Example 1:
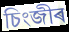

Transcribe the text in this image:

চিংজীৰ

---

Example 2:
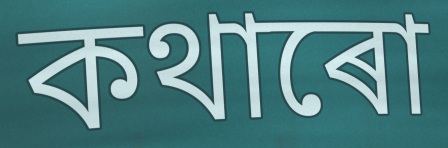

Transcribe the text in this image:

কথাৰো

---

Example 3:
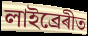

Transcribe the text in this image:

লাইব্ৰেৰীত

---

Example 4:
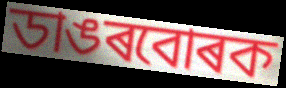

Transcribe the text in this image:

ডাঙৰবোৰক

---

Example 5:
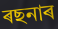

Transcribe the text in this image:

ৰছনাৰ